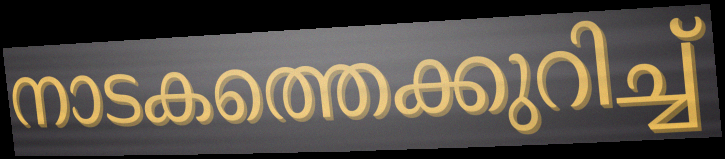
നാടകത്തെക്കുറിച്ച്